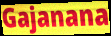
Gajanana